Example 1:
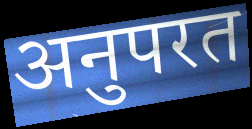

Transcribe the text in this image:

अनुपरत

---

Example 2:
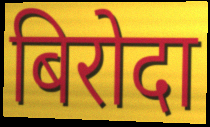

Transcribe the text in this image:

बिरोदा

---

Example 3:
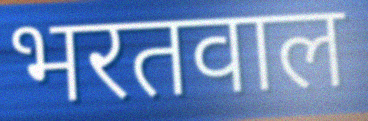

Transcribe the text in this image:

भरतवाल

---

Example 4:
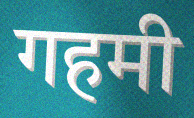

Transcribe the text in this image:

गहमी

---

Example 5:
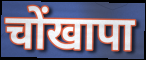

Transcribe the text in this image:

चोंखापा